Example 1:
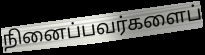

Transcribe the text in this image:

நினைப்பவர்களைப்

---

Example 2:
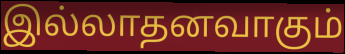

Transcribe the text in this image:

இல்லாதனவாகும்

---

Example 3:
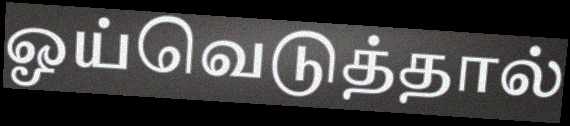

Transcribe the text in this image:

ஓய்வெடுத்தால்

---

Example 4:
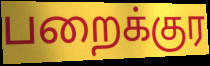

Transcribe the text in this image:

பறைக்குர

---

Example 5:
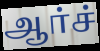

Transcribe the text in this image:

ஆர்ச்